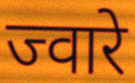
ज्वारे